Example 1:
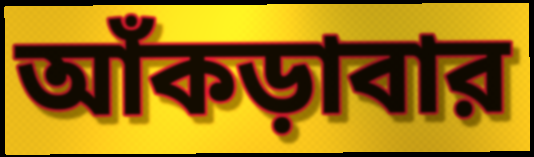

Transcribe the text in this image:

আঁকড়াবার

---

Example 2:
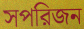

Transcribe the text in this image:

সপরিজন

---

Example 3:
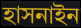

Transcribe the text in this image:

হাসনাইন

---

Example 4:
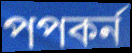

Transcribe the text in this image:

পপকর্ন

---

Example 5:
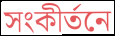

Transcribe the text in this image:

সংকীর্তনে